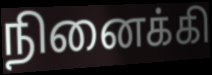
நினைக்கி